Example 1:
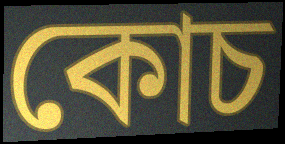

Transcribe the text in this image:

কোচ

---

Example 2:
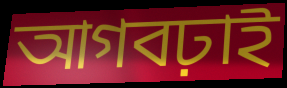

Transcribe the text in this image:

আগবঢ়াই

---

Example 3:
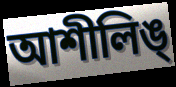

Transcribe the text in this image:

আশীলিঙ্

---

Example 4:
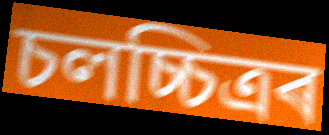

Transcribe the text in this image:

চলচ্চিত্ৰৰ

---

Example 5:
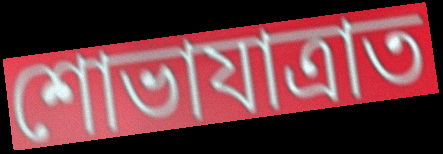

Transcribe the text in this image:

শোভাযাত্ৰাত